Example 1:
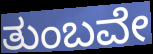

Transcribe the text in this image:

ತುಂಬವೇ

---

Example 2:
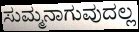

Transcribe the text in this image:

ಸುಮ್ಮನಾಗುವುದಲ್ಲ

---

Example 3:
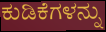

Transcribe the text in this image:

ಕುಡಿಕೆಗಳನ್ನು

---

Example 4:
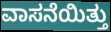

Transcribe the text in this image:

ವಾಸನೆಯಿತ್ತು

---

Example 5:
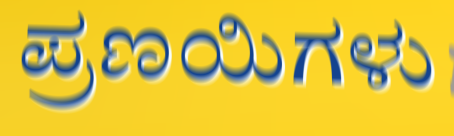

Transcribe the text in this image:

ಪ್ರಣಯಿಗಳು